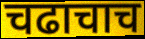
चढाचाच